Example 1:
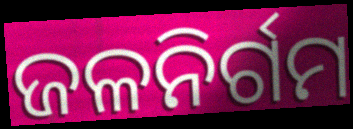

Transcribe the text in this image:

ଜଳନିର୍ଗମ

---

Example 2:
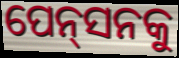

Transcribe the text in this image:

ପେନ୍‌ସନକୁ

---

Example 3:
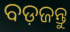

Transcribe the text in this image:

ବଡ଼ଜନ୍ତୁ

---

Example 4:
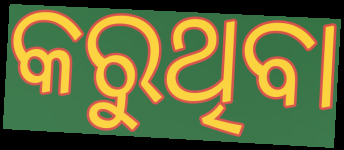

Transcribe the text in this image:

କରୁଥିବା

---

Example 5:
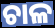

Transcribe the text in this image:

ଚାଳ